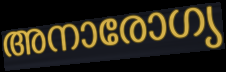
അനാരോഗ്യ